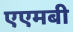
एएमबी